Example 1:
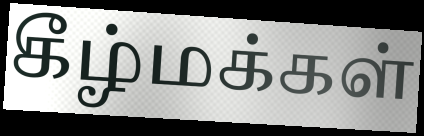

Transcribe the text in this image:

கீழ்மக்கள்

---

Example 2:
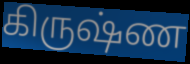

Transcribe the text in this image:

கிருஷ்ண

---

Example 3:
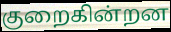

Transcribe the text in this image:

குறைகின்றன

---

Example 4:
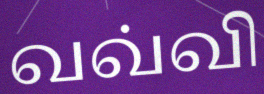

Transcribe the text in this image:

வவ்வி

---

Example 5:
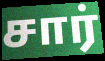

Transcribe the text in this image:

சார்